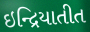
ઇન્દ્રિયાતીત